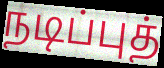
நடிப்புத்